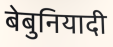
बेबुनियादी